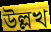
উল্লখ